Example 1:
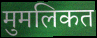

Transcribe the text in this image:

मुमलिकत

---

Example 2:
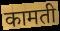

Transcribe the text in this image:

कामती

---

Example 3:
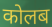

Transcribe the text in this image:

कोलब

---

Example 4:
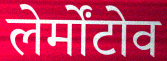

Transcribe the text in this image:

लेर्मोंटोव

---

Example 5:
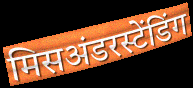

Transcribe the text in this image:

मिसअंडरस्टेंडिंग